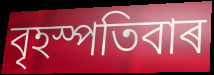
বৃহস্পতিবাৰ